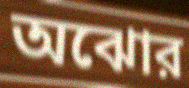
অঝোর